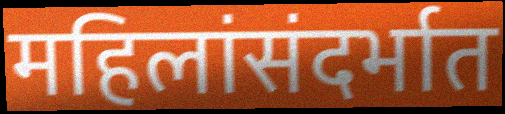
महिलांसंदर्भात